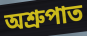
অশ্রুপাত